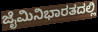
ಜೈಮಿನಿಭಾರತದಲ್ಲಿ